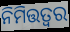
ନିମିତ୍ତତ୍ଵର